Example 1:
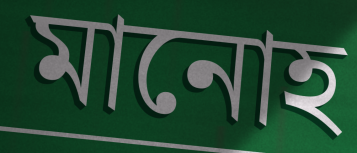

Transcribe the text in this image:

মানোহ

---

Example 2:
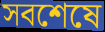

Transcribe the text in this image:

সবশেষে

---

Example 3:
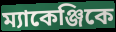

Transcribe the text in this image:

ম্যাকেঞ্জিকে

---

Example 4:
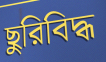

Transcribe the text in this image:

ছুরিবিদ্ধ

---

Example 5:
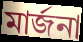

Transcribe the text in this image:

মার্জনা